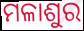
ମଳାଶୁର